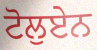
ਟੋਲੁਏਨ